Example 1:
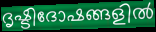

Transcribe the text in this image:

ദൃഷ്ടിദോഷങ്ങളിൽ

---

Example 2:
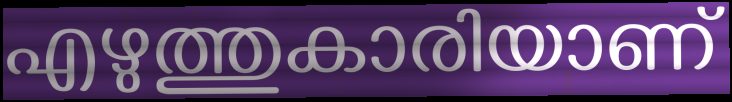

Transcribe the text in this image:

എഴുത്തുകാരിയാണ്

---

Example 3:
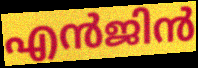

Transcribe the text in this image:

എൻജിൻ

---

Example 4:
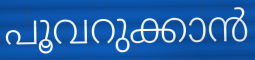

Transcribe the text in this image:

പൂവറുക്കാൻ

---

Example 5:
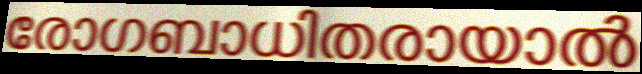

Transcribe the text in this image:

രോഗബാധിതരായാൽ